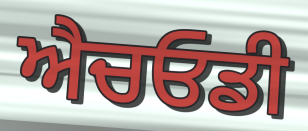
ਐਚਓਡੀ